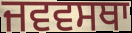
ਜਵਵਸਥਾ